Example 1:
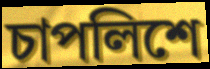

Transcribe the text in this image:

চাপলিশে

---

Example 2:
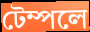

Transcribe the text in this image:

টেম্পলে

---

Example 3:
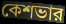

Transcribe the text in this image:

কেশভার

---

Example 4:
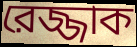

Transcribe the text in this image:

রেজ্জাক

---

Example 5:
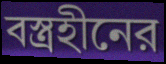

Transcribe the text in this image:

বস্ত্রহীনের